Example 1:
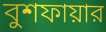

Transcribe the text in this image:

বুশফায়ার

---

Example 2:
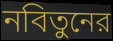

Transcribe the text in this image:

নবিতুনের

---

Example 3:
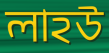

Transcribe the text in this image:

লাহউ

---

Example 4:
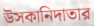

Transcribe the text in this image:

উসকানিদাতার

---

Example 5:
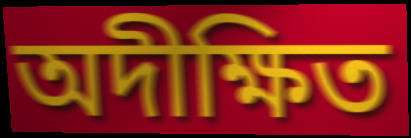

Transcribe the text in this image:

অদীক্ষিত